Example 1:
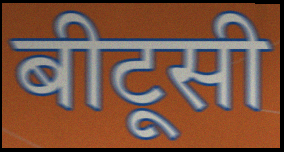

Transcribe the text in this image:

बीटूसी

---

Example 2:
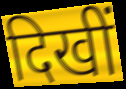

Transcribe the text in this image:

दिखीं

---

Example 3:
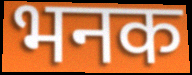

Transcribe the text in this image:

भनक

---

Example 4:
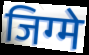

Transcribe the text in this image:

जिग्मे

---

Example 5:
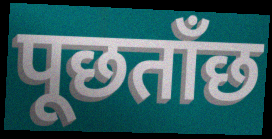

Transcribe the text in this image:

पूछताँछ